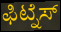
ಫಿಟ್ನೆಸ್